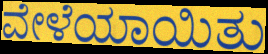
ವೇಳೆಯಾಯಿತು